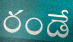
రండే